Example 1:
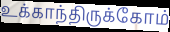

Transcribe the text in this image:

உக்காந்திருக்கோம்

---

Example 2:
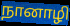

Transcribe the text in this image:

நானாழி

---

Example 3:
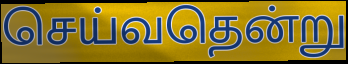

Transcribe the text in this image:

செய்வதென்று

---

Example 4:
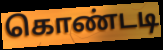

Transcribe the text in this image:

கொண்டடி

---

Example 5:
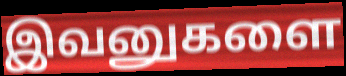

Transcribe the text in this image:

இவனுகளை